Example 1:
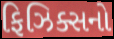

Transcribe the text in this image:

ફિઝિક્સનો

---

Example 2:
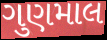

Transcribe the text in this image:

ગુણમાલ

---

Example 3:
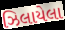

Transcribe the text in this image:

ઝિલાયેલા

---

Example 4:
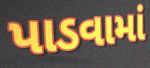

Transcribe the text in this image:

પાડવામાં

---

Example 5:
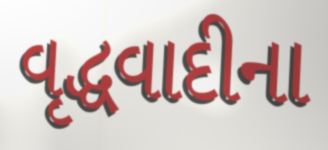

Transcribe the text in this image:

વૃદ્ધવાદીના